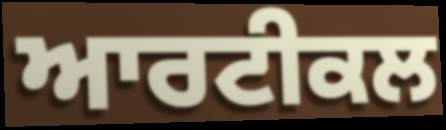
ਆਰਟੀਕਲ